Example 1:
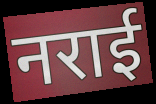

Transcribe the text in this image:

नराई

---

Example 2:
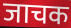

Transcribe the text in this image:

जाचक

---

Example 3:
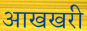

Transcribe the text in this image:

आखखरी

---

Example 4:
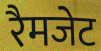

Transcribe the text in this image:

रैमजेट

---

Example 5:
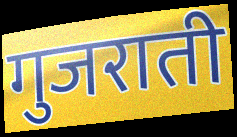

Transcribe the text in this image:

गुजराती